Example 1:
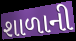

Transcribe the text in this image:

શાળાની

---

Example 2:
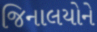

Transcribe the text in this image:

જિનાલયોને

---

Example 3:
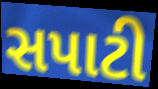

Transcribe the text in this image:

સપાટી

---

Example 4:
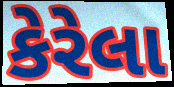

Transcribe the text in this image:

કેરેલા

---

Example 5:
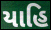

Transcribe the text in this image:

યાહિ